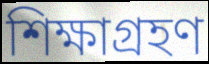
শিক্ষাগ্রহণ